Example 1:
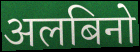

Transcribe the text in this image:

अलबिनो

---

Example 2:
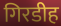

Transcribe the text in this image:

गिरडीह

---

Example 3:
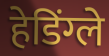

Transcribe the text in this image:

हेडिंग्‍ले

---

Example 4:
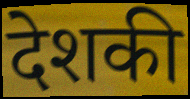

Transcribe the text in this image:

देशकी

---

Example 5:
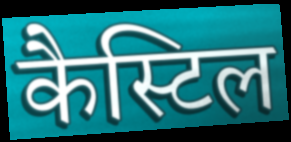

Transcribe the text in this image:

कैस्टिल